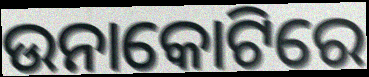
ଉନାକୋଟିରେ